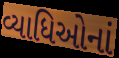
વ્યાધિઓનાં